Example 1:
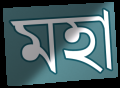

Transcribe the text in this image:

মহা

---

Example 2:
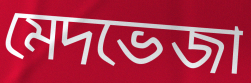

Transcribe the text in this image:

মেদভেজা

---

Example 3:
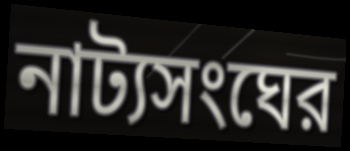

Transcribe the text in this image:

নাট্যসংঘের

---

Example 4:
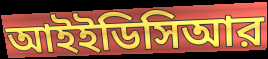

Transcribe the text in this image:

আইইডিসিআর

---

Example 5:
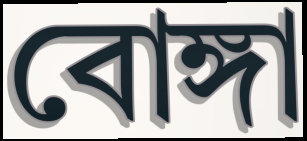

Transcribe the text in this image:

বোঙ্গা